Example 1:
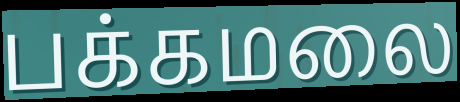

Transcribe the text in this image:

பக்கமலை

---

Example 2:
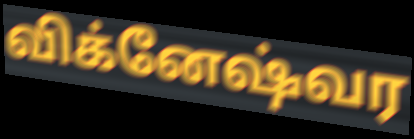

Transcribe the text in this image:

விக்னேஷ்வர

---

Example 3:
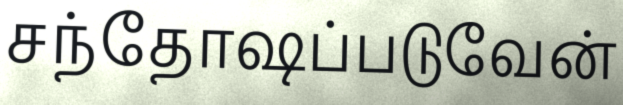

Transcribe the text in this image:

சந்தோஷப்படுவேன்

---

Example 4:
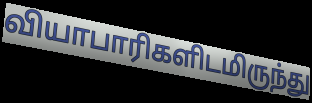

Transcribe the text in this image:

வியாபாரிகளிடமிருந்து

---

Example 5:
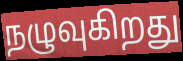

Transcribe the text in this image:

நழுவுகிறது